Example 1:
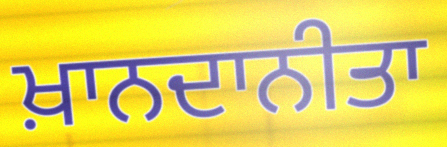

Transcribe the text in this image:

ਖ਼ਾਨਦਾਨੀਤਾ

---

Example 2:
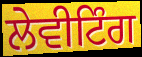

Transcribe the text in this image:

ਲੇਵੀਟਿੰਗ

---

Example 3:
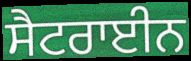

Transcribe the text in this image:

ਸੈਟਰਾਈਨ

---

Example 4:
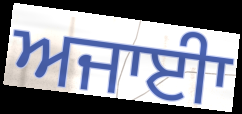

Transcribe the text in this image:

ਅਜਾਈਾ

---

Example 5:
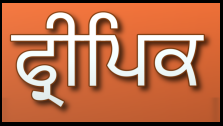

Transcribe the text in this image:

ਫ੍ਰੀਪਿਕ